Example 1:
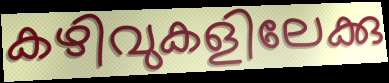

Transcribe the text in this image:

കഴിവുകളിലേക്കു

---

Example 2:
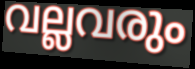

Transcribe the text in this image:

വല്ലവരും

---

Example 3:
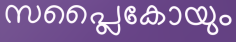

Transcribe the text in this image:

സപ്ലൈകോയും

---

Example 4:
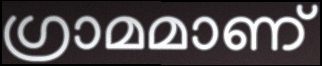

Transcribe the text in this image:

ഗ്രാമമാണ്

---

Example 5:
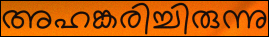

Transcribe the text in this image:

അഹങ്കരിച്ചിരുന്നു